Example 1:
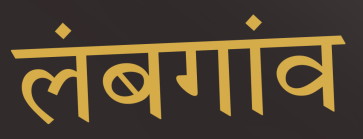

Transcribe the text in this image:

लंबगांव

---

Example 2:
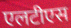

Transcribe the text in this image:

एलटीएस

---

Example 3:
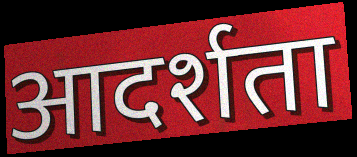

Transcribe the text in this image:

आदर्शता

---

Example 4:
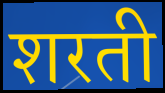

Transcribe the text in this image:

शरती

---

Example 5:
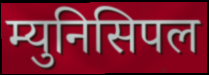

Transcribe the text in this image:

म्युनिसिपल